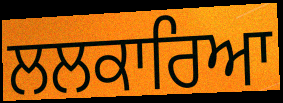
ਲਲਕਾਰਿਆ